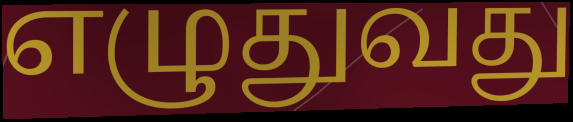
எழுதுவது